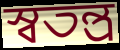
স্বতন্ত্ৰ